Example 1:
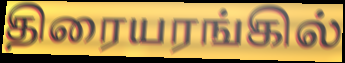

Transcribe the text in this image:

திரையரங்கில்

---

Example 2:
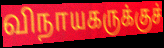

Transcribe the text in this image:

விநாயகருக்குச்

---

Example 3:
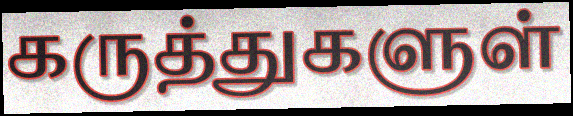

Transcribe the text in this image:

கருத்துகளுள்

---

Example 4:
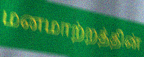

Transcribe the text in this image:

மனமாற்றத்தின்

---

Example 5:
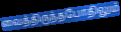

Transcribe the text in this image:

வைத்திருந்தபோதிலும்